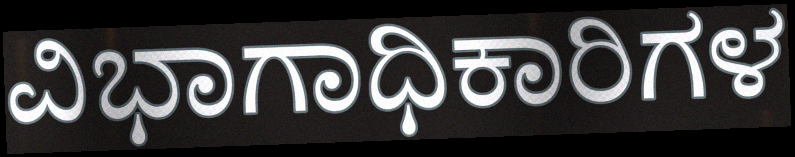
ವಿಭಾಗಾಧಿಕಾರಿಗಳ